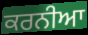
ਕਰਨੀਆ